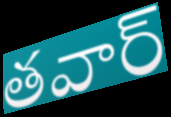
తవార్